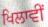
ਖਿਲਾਵੀਂ